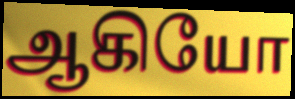
ஆகியோ